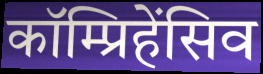
कॉम्प्रिहेंसिव